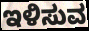
ಇಳಿಸುವ